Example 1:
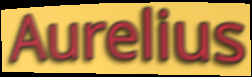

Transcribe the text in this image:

Aurelius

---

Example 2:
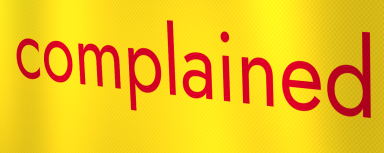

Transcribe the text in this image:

complained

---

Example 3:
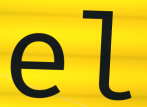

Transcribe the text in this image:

el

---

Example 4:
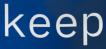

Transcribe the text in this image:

keep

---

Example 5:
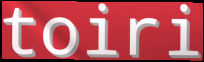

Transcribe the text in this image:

toiri